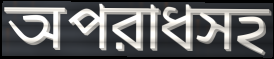
অপরাধসহ